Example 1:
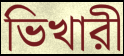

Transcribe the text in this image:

ভিখারী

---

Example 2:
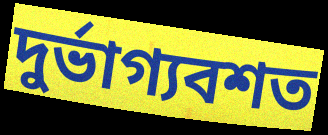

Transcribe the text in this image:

দুর্ভাগ্যবশত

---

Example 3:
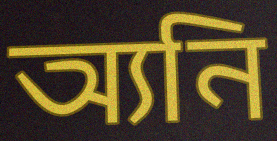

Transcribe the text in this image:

অ্যনি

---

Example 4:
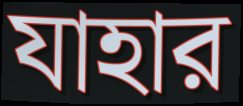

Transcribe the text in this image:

যাহার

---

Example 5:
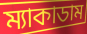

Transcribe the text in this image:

ম্যাকাডাম